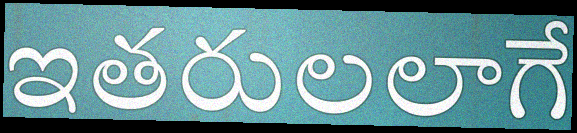
ఇతరులలాగే